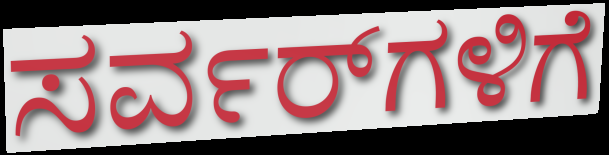
ಸರ್ವರ್‌ಗಳಿಗೆ